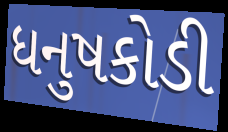
ધનુષકોડી